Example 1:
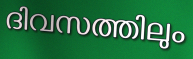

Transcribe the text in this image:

ദിവസത്തിലും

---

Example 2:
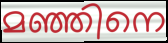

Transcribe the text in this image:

മഞ്ഞിനെ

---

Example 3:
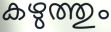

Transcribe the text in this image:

കഴുത്തും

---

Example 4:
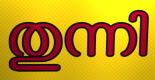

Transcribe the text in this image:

തുന്നി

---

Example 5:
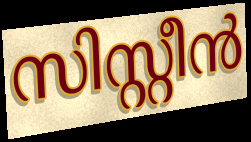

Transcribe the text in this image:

സിസ്റ്റീൻ